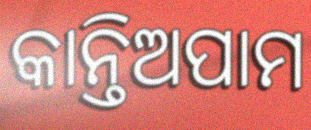
କାନ୍ତିଅପାମ